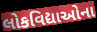
લોકવિદ્યાઓના